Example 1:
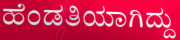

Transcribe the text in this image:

ಹೆಂಡತಿಯಾಗಿದ್ದು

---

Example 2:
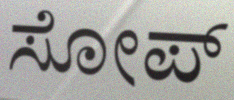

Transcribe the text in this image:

ಸೋಪ್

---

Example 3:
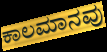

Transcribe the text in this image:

ಕಾಲಮಾನವು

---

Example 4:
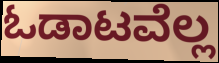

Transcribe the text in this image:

ಓಡಾಟವೆಲ್ಲ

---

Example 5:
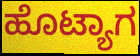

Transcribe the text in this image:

ಹೊಟ್ಯಾಗ